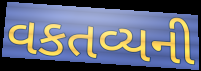
વકતવ્યની